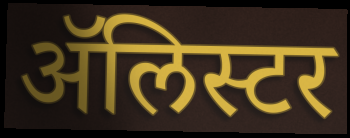
ॲलिस्टर